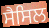
ਸੈਸਿਲ